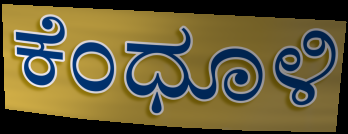
ಕೆಂಧೂಳಿ